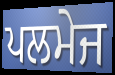
ਪਲਮੇਜ